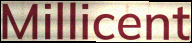
Millicent